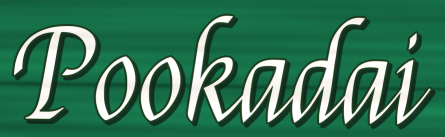
Pookadai